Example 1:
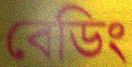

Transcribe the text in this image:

বেডিং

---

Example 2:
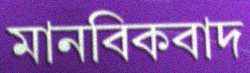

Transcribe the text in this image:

মানবিকবাদ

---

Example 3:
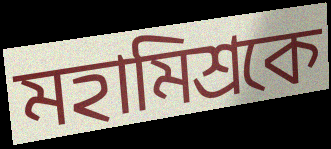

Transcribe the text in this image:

মহামিশ্রকে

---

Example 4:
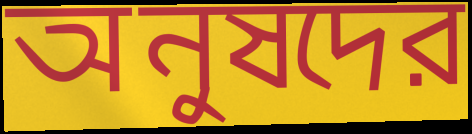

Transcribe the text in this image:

অনুষদের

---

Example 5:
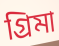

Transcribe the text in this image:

গ্রিমা